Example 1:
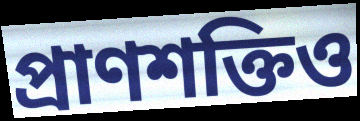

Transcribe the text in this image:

প্রাণশক্তিও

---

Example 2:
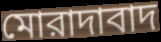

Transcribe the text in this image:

মোরাদাবাদ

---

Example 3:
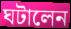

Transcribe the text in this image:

ঘটালেন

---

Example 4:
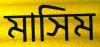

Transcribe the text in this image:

মাসিম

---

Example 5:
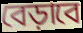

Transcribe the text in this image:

বেড়াবে